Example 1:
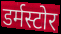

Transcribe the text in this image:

डर्मस्टोर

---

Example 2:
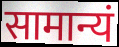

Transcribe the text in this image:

सामान्यं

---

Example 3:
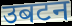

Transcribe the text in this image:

उबटन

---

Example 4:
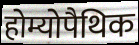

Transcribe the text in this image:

होम्‍योपैथिक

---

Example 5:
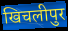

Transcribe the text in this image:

खिचलीपुर